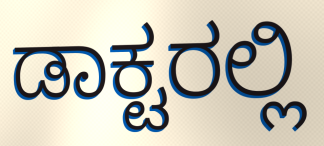
ಡಾಕ್ಟರಲ್ಲಿ